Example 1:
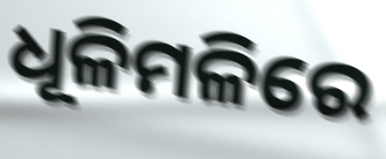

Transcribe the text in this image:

ଧୂଳିମଳିରେ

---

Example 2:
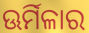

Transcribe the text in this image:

ଊର୍ମିଳାର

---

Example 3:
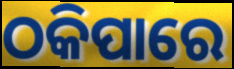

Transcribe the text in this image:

ଠକିପାରେ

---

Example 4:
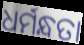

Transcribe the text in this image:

ଧର୍ମନ୍ଧତା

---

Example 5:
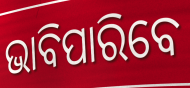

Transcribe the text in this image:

ଭାବିପାରିବେ